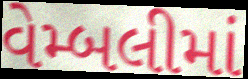
વેમ્બલીમાં